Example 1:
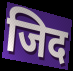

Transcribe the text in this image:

जिद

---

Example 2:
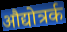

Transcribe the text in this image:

औद्योत्रर्क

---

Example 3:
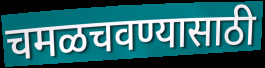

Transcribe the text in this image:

चमळचवण्यासाठी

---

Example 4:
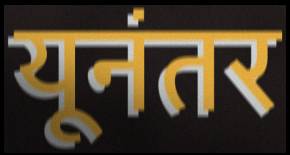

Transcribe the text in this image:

यूनंतर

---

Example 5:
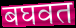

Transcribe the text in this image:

बघवत